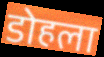
डोहला